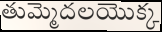
తుమ్మెదలయొక్క